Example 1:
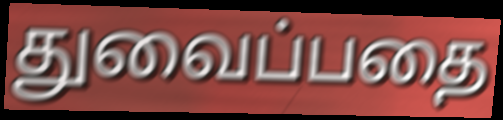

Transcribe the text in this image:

துவைப்பதை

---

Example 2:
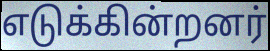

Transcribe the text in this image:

எடுக்கின்றனர்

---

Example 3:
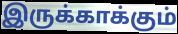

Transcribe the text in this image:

இருக்காக்கும்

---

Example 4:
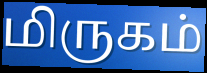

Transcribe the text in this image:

மிருகம்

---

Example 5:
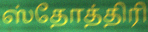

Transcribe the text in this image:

ஸ்தோத்திரி